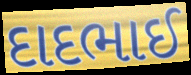
દાદભાઈ